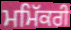
ਮਮਿੱਕਰੀ